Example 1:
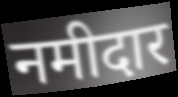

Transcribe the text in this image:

नमीदार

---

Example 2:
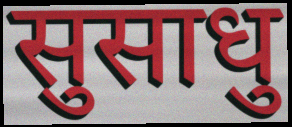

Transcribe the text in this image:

सुसाधु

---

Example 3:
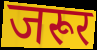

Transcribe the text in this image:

जरूर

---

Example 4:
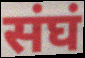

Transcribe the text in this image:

संघं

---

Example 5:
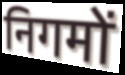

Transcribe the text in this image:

निगमों